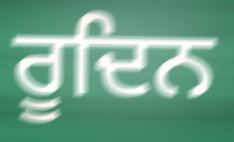
ਰੂਦਿਨ